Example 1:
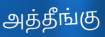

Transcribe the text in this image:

அத்தீங்கு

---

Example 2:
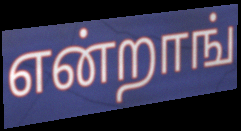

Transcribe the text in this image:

என்றாங்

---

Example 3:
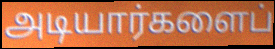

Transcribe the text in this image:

அடியார்களைப்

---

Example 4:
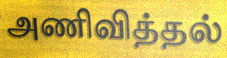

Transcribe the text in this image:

அணிவித்தல்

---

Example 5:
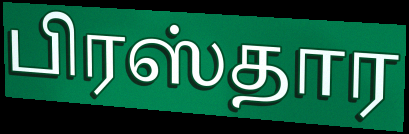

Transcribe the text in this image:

பிரஸ்தார